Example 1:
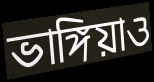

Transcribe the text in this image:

ভাঙ্গিয়াও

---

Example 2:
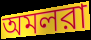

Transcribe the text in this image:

অমলরা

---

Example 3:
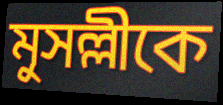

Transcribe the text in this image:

মুসল্লীকে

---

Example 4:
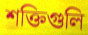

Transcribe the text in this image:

শক্তিগুলি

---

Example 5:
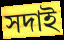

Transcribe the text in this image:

সদাই